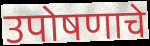
उपोषणाचे